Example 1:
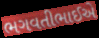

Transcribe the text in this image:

ભગવતીભાઈએ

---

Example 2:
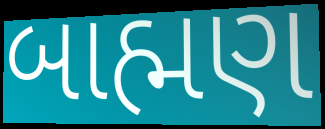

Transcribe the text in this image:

બાહ્મણ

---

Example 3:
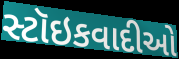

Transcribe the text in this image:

સ્ટૉઇકવાદીઓ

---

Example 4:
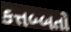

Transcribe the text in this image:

કત્તબ્બતો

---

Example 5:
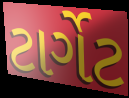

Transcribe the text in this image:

ટાર્ગેટ